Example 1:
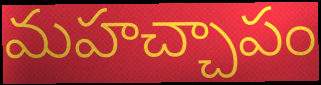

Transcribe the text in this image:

మహచ్చాపం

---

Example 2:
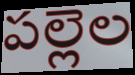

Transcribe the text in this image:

పల్లెల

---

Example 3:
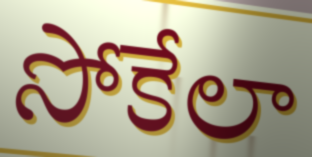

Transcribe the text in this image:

సోకేలా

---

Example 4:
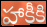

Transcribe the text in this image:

హాకీకి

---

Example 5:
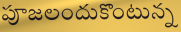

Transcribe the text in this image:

పూజలందుకొంటున్న